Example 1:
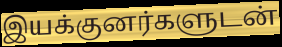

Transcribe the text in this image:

இயக்குனர்களுடன்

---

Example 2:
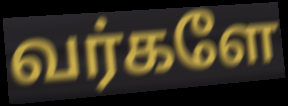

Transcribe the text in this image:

வர்களே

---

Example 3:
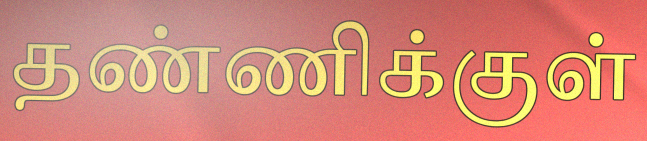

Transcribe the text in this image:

தண்ணிக்குள்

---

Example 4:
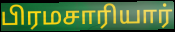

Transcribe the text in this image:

பிரமசாரியார்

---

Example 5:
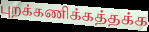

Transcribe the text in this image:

புறக்கணிக்கத்தக்க